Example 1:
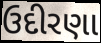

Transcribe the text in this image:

ઉદીરણા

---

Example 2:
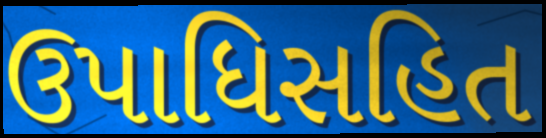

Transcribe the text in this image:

ઉપાધિસહિત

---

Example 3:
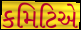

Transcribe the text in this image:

કમિટિએ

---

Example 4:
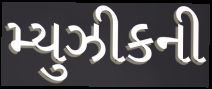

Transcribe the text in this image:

મ્યુઝીકની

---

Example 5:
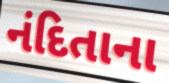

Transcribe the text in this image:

નંદિતાના